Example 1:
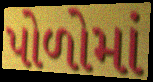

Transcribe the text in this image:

પોળોમાં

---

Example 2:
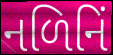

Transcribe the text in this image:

નળિનિં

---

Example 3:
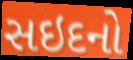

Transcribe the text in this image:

સઇદનો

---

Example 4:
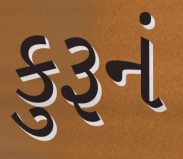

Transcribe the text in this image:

કુરૂનં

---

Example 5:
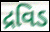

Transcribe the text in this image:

દ્રવિડ